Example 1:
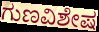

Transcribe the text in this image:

ಗುಣವಿಶೇಷ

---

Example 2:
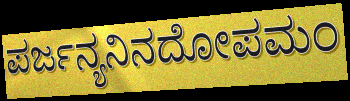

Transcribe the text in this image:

ಪರ್ಜನ್ಯನಿನದೋಪಮಂ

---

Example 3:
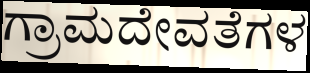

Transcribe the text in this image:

ಗ್ರಾಮದೇವತೆಗಳ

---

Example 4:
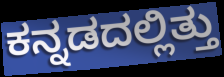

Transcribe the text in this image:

ಕನ್ನಡದಲ್ಲಿತ್ತು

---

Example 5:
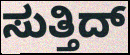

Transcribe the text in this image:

ಸುತ್ತಿದ್